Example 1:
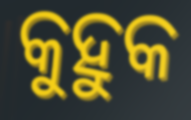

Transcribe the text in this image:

କୁହୁକ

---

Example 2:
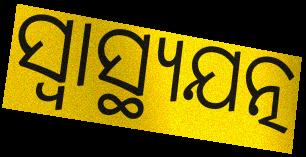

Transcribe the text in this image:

ସ୍ୱାସ୍ଥ୍ୟଯତ୍ନ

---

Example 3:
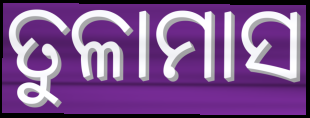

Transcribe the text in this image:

ତୁଳାମାସ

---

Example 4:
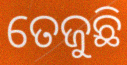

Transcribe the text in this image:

ତେଜୁଛି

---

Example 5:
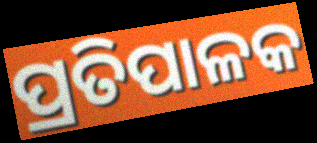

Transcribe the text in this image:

ପ୍ରତିପାଳକ